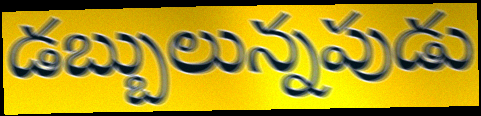
డబ్బులున్నపుడు